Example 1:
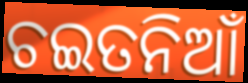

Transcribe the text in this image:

ଚଇତନିଆଁ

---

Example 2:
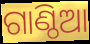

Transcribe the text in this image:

ଗାଣ୍ଠିଆ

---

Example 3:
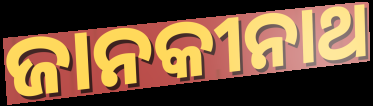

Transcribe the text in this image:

ଜାନକୀନାଥ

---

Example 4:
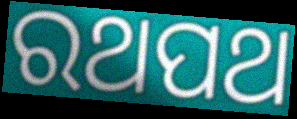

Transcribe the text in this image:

ରଥପଥ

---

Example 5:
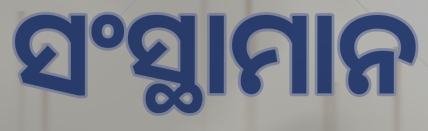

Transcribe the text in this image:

ସଂସ୍ଥାମାନ